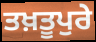
ਤਖ਼ਤੂਪੁਰੇ